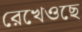
রেখেওছে